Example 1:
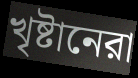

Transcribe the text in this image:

খৃষ্টানেরা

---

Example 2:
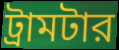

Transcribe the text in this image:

ট্রামটার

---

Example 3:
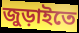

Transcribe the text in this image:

জুড়াইতে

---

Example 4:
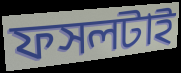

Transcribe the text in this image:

ফসলটাই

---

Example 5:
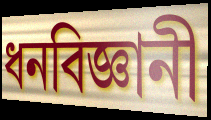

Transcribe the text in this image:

ধনবিজ্ঞানী